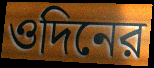
ওদিনের